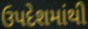
ઉપદેશમાંથી